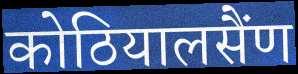
कोठियालसैंण